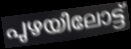
പുഴയിലോട്ട്